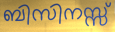
ബിസിനസ്സ്